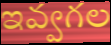
ఇవ్వగల